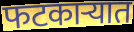
फटकाऱ्यात